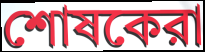
শোষকেরা